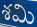
శమి